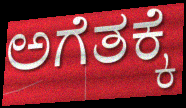
ಅಗೆತಕ್ಕೆ